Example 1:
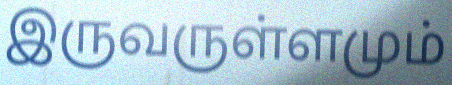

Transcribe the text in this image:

இருவருள்ளமும்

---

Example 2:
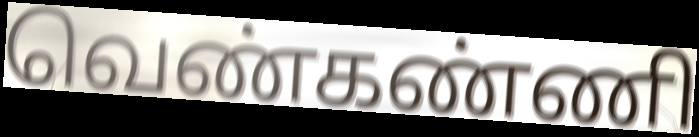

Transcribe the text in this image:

வெண்கண்ணி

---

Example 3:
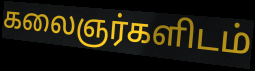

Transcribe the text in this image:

கலைஞர்களிடம்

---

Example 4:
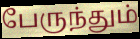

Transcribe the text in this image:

பேருந்தும்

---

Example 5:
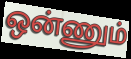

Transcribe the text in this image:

ஒன்ணும்